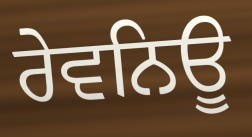
ਰੇਵਨਿਊ